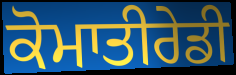
ਕੋਮਾਤੀਰੇਡੀ